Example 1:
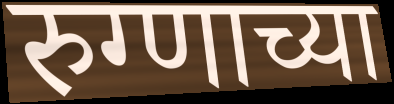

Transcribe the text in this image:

रुग्णाच्या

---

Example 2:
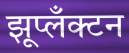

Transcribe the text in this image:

झूप्लँक्टन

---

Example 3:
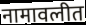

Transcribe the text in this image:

नामावलीत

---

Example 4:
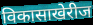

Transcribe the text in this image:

विकासाखेरीज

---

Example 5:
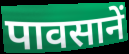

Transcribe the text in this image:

पावसानें